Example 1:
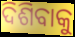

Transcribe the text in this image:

ଦିଶିବାକୁ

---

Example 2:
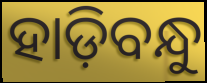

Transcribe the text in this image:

ହାଡ଼ିବନ୍ଧୁ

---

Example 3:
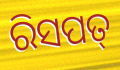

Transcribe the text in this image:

ରିସପତ୍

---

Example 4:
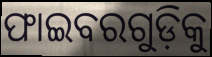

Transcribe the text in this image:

ଫାଇବରଗୁଡ଼ିକୁ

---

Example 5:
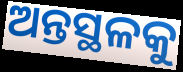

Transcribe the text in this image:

ଅନ୍ତସ୍ଥଳକୁ